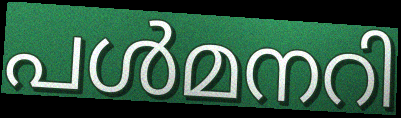
പൾമനറി